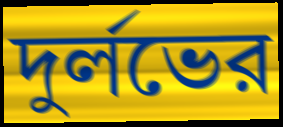
দুর্লভের